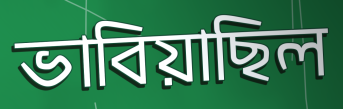
ভাবিয়াছিল